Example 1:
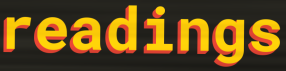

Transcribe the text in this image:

readings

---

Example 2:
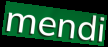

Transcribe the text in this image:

mendi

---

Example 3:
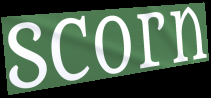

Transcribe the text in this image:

scorn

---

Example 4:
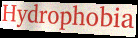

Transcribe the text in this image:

Hydrophobia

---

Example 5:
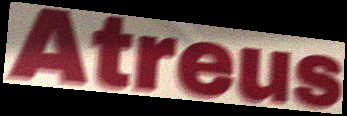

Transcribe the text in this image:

Atreus